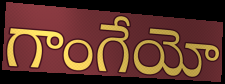
గాంగేయో